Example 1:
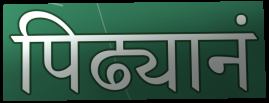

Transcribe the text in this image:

पिढ्यानं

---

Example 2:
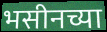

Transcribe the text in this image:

भसीनच्या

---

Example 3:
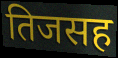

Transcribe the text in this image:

तिजसह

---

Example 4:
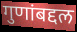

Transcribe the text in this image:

गुणांबद्दल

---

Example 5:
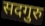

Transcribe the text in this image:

सदगुरु